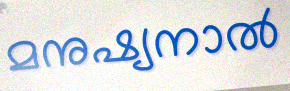
മനുഷ്യനാൽ